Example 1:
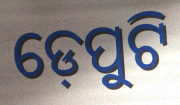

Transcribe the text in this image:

ଡ଼େପୁଟି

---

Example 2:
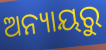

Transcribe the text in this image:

ଅନ୍ୟାୟରୁ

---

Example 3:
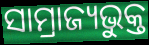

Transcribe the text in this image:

ସାମ୍ରାଜ୍ୟଭୁକ୍ତ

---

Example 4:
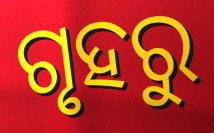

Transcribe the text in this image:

ଗୃହରୁ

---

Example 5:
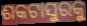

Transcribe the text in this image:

ଶକଟାସୁରକୁ